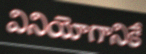
వినియోగానికే